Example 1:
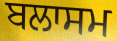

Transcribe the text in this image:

ਬਲਾਸਮ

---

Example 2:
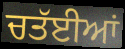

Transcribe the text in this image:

ਚਤੱਈਆਂ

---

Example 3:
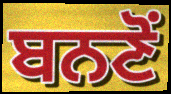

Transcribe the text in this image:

ਬਨਣੋਂ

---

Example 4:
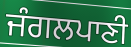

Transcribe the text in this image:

ਜੰਗਲਪਾਣੀ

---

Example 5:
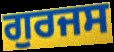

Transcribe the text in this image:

ਗੁਰਜਸ